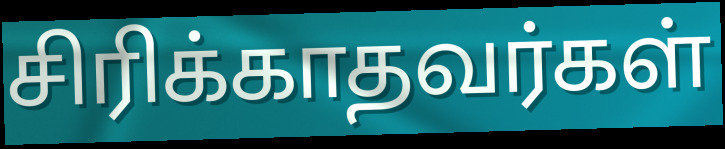
சிரிக்காதவர்கள்